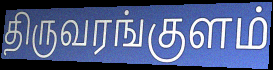
திருவரங்குளம்